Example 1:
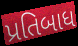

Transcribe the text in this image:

પ્રતિબાધ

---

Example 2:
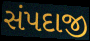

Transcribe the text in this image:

સંપદાજી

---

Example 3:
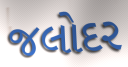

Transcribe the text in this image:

જલોદર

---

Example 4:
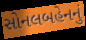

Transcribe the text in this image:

સોનલબહેનનું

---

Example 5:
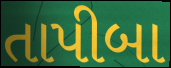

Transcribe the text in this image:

તાપીબા